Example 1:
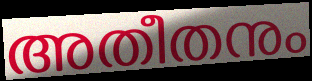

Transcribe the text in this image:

അതീതനും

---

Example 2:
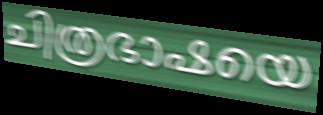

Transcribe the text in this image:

ചിത്രഭാഷയെ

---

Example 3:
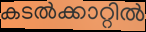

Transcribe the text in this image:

കടൽക്കാറ്റിൽ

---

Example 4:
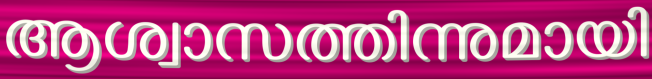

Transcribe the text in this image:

ആശ്വാസത്തിന്നുമായി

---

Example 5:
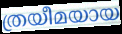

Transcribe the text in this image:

ത്രയീമയായ